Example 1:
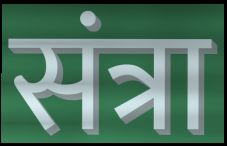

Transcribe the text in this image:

संत्रा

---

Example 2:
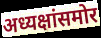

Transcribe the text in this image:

अध्यक्षांसमोर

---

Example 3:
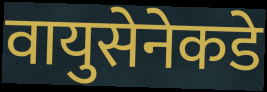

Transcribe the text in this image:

वायुसेनेकडे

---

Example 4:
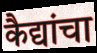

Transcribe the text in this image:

कैद्यांचा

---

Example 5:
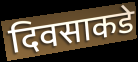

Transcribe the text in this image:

दिवसाकडे